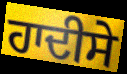
ਹਾਦੀਸੇ